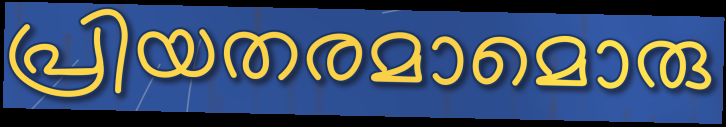
പ്രിയതരമാമൊരു